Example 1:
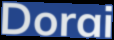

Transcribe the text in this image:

Dorai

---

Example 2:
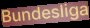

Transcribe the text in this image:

Bundesliga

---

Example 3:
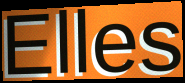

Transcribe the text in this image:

Elles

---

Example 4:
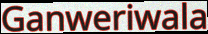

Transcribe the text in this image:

Ganweriwala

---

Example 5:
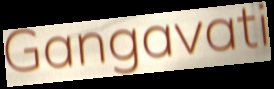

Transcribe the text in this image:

Gangavati